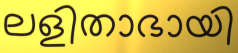
ലളിതാഭായി